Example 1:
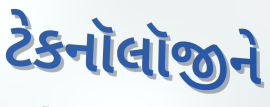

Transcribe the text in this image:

ટેકનૉલૉજીને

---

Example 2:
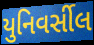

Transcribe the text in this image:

યુનિવર્સીલ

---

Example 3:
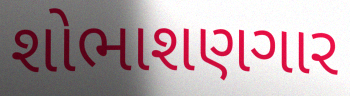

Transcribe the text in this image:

શોભાશણગાર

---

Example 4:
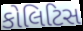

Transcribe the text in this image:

કોલિટિસ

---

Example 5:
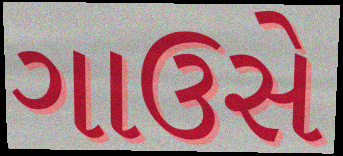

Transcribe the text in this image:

ગાઉસે